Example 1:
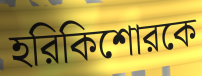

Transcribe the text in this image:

হরিকিশোরকে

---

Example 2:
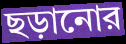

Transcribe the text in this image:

ছড়ানোর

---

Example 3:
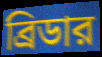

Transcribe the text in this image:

ব্রিডার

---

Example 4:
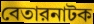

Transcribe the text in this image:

বেতারনাটক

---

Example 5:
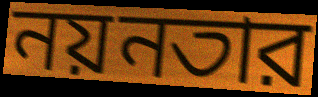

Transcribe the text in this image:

নয়নতার